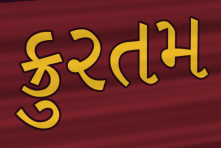
ક્રુરતમ